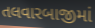
તલવારબાજીમાં